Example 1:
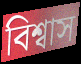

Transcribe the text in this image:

বিশ্বাস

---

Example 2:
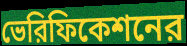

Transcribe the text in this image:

ভেরিফিকেশনের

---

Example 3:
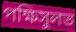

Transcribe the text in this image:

পক্ষিসুলভ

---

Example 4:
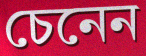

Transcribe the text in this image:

চেনেন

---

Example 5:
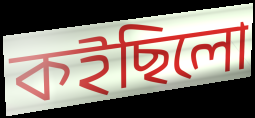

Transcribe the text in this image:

কইছিলো